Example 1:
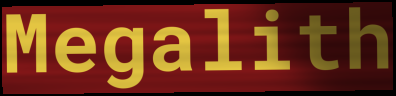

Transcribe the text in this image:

Megalith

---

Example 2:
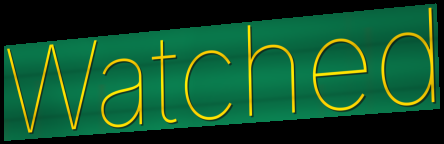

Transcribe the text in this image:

Watched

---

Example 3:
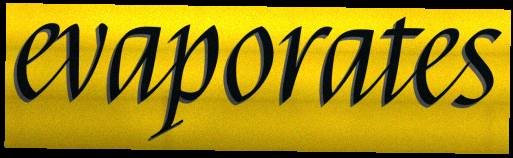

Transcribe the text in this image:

evaporates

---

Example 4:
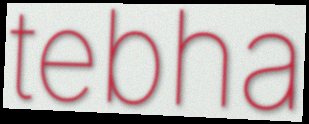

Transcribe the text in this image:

tebha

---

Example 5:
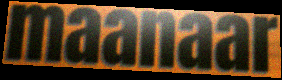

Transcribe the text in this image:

maanaar